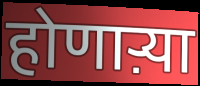
होणाऱ्‍या